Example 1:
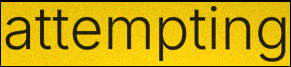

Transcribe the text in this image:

attempting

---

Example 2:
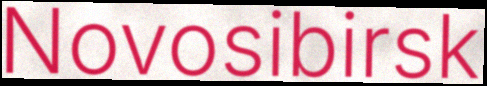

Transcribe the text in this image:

Novosibirsk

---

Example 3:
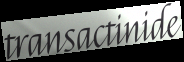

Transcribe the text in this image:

transactinide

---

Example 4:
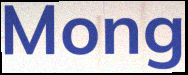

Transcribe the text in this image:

Mong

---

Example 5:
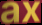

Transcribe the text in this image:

ax